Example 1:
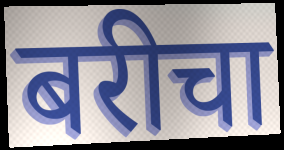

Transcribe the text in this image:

बरीचा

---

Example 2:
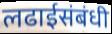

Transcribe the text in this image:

लढाईसंबंधी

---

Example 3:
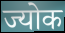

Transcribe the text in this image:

ज्योक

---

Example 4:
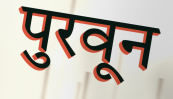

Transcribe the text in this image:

पुरवून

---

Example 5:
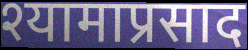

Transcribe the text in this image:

श्यामाप्रसाद